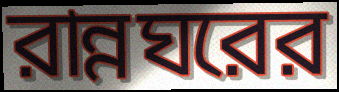
রান্নঘরের